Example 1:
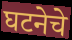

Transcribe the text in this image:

घटनेचे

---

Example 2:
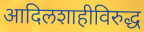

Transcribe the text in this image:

आदिलशाहीविरुद्ध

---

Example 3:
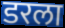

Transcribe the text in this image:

डरला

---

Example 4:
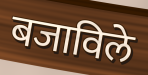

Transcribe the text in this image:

बजाविले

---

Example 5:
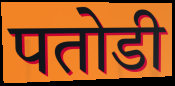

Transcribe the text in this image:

पतोडी